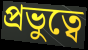
প্রভুত্বে